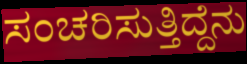
ಸಂಚರಿಸುತ್ತಿದ್ದೆನು